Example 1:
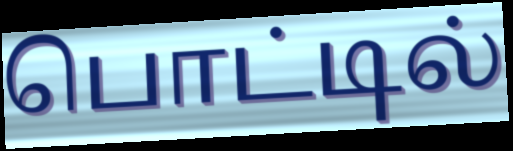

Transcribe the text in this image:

பொட்டில்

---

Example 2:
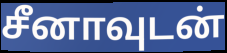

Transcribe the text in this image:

சீனாவுடன்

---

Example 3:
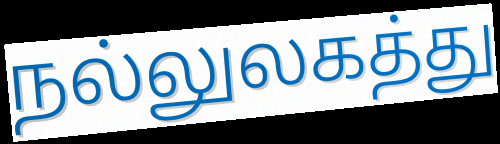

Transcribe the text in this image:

நல்லுலகத்து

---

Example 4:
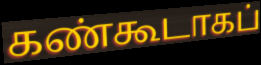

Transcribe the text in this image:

கண்கூடாகப்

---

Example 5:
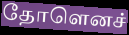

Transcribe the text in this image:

தோளெனச்